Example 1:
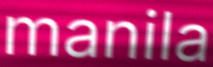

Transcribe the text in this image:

manila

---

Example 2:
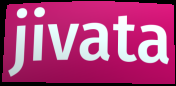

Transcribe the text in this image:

jivata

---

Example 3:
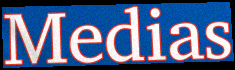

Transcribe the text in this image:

Medias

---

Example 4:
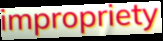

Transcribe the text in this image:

impropriety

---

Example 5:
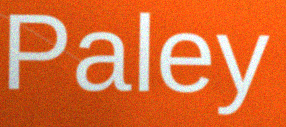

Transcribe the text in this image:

Paley